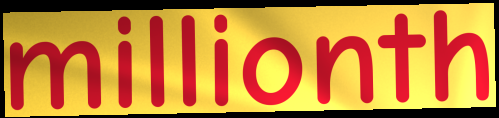
millionth